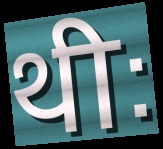
थीः